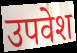
उपवेश